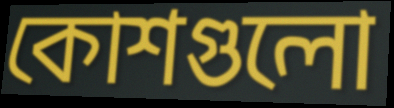
কোশগুলো